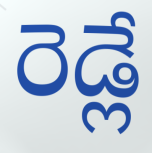
రెడ్లే